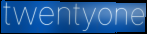
twentyone